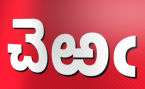
చెఱఁ